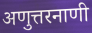
अणुत्तरनाणी